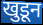
खुडून